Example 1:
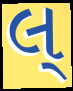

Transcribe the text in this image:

લ્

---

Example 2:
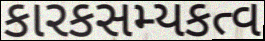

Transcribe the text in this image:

કારકસમ્યકત્વ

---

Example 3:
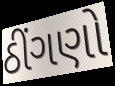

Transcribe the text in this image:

ઠીંગણો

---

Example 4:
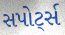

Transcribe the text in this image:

સપોર્ટ્સ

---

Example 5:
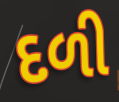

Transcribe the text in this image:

દળી